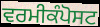
ਵਰਮੀਕੰਪੋਸਟ